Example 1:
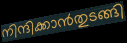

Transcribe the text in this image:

നിന്ദിക്കാൻതുടങ്ങി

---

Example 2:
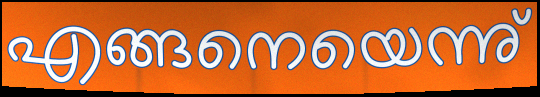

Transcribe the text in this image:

എങ്ങനെയെന്നു്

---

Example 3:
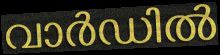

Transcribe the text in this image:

വാർഡിൽ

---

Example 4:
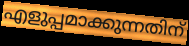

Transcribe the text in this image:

എളുപ്പമാക്കുന്നതിന്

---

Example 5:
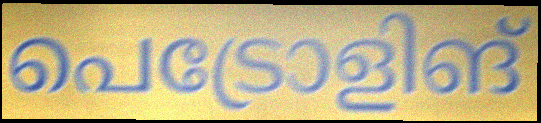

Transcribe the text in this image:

പെട്രോളിങ്